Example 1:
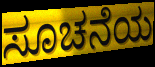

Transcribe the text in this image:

ಸೂಚನೆಯ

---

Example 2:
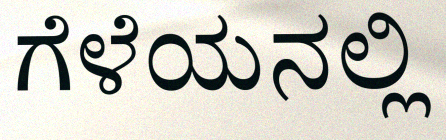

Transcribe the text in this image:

ಗೆಳೆಯನಲ್ಲಿ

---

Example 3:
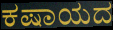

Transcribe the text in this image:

ಕಷಾಯದ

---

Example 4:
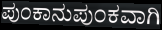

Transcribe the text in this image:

ಪುಂಕಾನುಪುಂಕವಾಗಿ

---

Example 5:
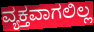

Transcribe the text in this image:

ವ್ಯಕ್ತವಾಗಲಿಲ್ಲ